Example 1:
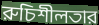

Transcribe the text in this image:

রুচিশীলতার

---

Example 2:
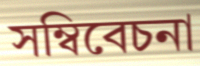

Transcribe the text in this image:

সম্বিবেচনা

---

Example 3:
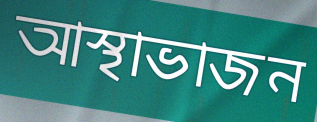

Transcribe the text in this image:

আস্থাভাজন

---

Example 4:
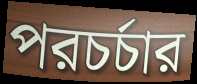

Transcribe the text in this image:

পরচর্চার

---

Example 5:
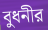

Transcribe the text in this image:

বুধনীর